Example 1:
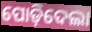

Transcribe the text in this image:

ପୋଡ଼ିଦେଲା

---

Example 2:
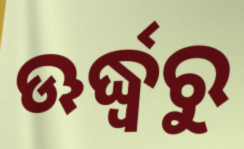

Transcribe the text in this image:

ଊର୍ଦ୍ଧ୍ଵରୁ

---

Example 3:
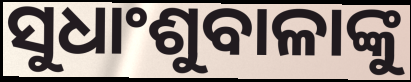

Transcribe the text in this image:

ସୁଧାଂଶୁବାଳାଙ୍କୁ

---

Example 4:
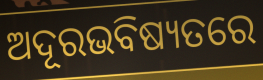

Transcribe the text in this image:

ଅଦୂରଭବିଷ୍ୟତରେ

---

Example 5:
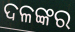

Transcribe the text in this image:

ଦଳଙ୍କର